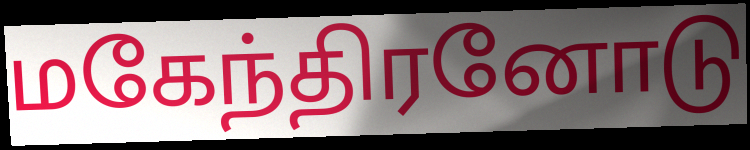
மகேந்திரனோடு